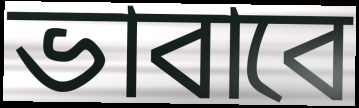
ভাবাবে